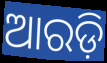
ଆରଡ଼ି